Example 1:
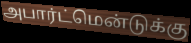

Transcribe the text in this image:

அபார்ட்மென்டுக்கு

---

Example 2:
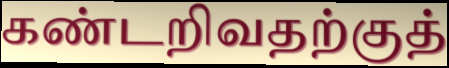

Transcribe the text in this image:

கண்டறிவதற்குத்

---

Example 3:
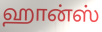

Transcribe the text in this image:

ஹான்ஸ்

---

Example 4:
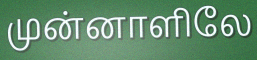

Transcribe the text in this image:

முன்னாளிலே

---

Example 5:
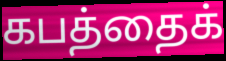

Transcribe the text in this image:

கபத்தைக்